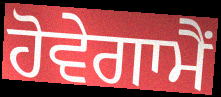
ਹੋਵੇਗਾਮੈਂ